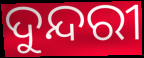
ଦୁନ୍ଦରୀ